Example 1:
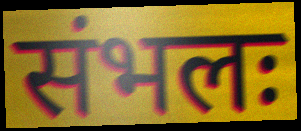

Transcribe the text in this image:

संभलः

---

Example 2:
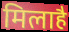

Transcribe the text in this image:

मिलाहै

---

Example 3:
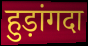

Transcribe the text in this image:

हुड़ांगदा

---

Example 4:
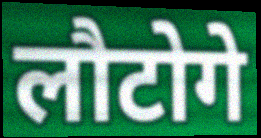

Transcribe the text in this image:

लौटोगे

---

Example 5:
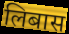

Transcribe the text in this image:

लिबास